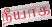
நீயாக